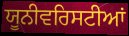
ਯੂਨੀਵਰਿਸਟੀਆਂ